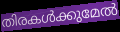
തിരകൾക്കുമേൽ